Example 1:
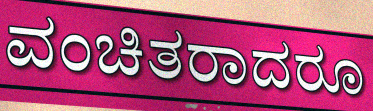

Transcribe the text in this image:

ವಂಚಿತರಾದರೂ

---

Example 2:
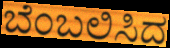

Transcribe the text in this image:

ಬೆಂಬಲಿಸಿದ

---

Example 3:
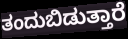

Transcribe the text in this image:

ತಂದುಬಿಡುತ್ತಾರೆ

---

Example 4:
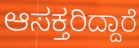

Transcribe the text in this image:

ಆಸಕ್ತರಿದ್ದಾರೆ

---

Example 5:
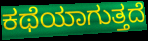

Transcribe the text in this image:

ಕಥೆಯಾಗುತ್ತದೆ